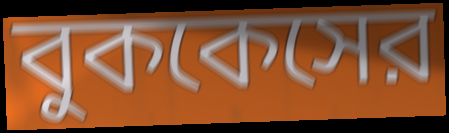
বুককেসের